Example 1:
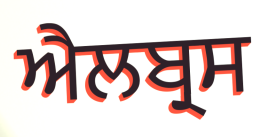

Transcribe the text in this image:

ਐਲਬ੍ਰਸ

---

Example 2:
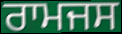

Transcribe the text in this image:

ਰਾਮਜਸ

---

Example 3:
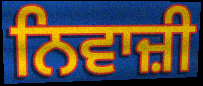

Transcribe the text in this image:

ਨਿਵਾਜ਼ੀ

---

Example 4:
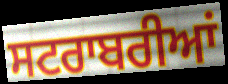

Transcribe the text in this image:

ਸਟਰਾਬਰੀਆਂ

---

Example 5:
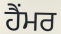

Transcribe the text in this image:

ਹੈਂਮਰ